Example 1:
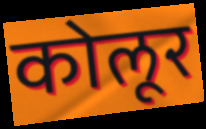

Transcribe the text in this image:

कोलूर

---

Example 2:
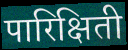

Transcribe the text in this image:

पारिक्षिती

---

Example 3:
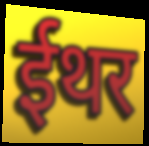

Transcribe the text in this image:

ईथर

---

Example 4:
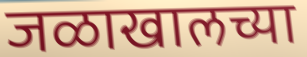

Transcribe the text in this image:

जळाखालच्या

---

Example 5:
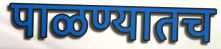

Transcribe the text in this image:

पाळण्यातच